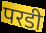
परडी